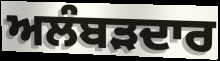
ਅਲੰਬੜਦਾਰ